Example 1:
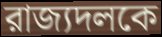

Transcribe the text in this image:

রাজ্যদলকে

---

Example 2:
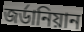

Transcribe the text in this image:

জর্ডানিয়ান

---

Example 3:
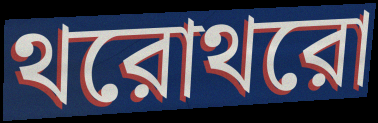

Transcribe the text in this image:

থরোথরো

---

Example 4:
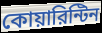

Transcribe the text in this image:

কোয়ারিন্টিন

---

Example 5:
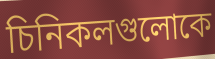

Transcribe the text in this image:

চিনিকলগুলোকে